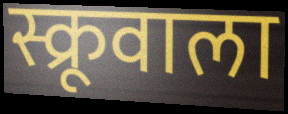
स्क्रूवाला